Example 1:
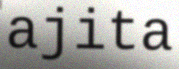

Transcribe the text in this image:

ajita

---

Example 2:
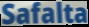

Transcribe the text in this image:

Safalta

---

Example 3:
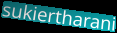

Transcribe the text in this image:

sukiertharani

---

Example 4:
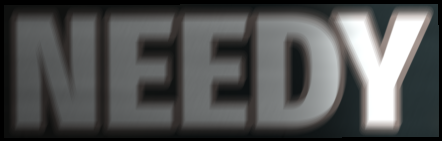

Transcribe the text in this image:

NEEDY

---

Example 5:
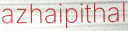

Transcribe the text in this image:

azhaipithal